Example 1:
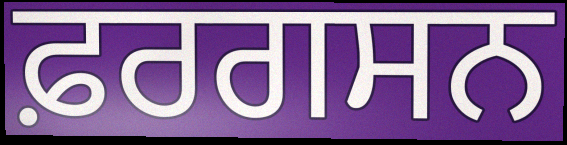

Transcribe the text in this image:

ਫ਼ਰਗਸਨ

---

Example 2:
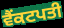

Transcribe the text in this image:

ਵੈਂਕਟਪਤੀ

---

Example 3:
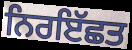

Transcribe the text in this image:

ਨਿਰਇੱਛਤ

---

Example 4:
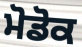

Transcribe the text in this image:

ਮੋਡੋਕ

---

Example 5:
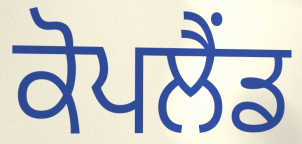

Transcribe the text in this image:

ਕੋਪਲੈਂਡ